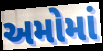
અમોમાં